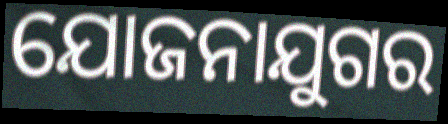
ଯୋଜନାଯୁଗର